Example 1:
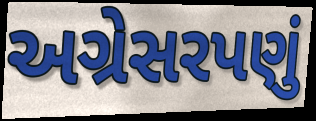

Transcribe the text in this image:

અગ્રેસરપણું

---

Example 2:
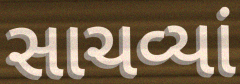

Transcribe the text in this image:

સાચવ્યાં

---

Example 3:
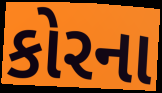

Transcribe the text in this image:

કોરના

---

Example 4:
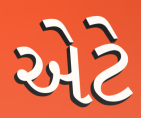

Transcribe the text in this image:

એટે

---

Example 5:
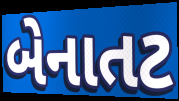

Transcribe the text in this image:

બેનાતટ